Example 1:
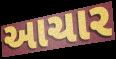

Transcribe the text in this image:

આચાર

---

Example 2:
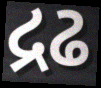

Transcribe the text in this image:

દ્રઢ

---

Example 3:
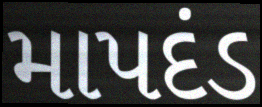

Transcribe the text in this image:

માપદંડ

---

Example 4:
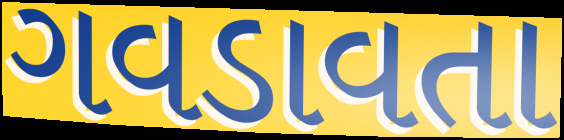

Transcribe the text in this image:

ગવડાવતા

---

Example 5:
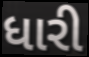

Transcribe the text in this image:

ધારી